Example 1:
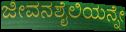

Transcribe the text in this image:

ಜೀವನಶೈಲಿಯನ್ನೇ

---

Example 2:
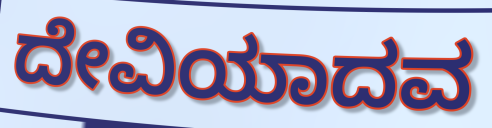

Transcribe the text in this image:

ದೇವಿಯಾದವ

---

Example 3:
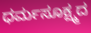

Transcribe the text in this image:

ಧರ್ಮಸೂಕ್ಷ್ಮದ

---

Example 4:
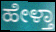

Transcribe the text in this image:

ಹೇಳ್ತಾ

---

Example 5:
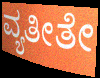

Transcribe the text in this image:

ವ್ಯತೀತೇ